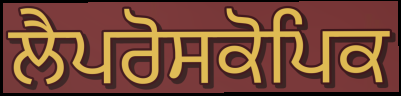
ਲੈਪਰੋਸਕੋਪਿਕ